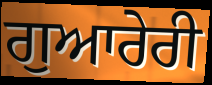
ਗੁਆਰੇਰੀ